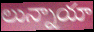
లున్నాయా